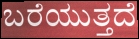
ಬರೆಯುತ್ತದೆ